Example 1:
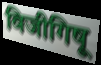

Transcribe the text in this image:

विजीगिषू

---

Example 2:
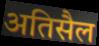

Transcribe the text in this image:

अतिसैल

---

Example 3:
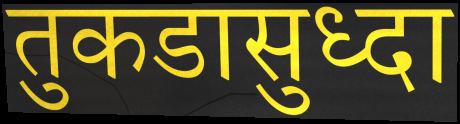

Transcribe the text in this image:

तुकडासुध्दा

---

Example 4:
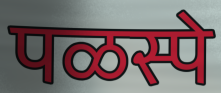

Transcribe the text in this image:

पळस्पे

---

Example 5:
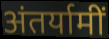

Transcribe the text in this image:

अंतर्यामीं